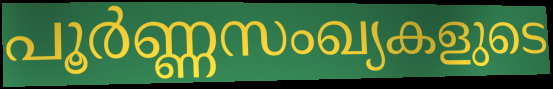
പൂർണ്ണസംഖ്യകളുടെ